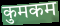
कुमकम